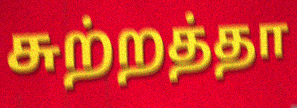
சுற்றத்தா